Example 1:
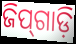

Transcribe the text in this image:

ଜିପ୍‍ଗାଡ଼ି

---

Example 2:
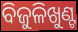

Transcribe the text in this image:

ବିଜୁଳିଖୁଣ୍ଟ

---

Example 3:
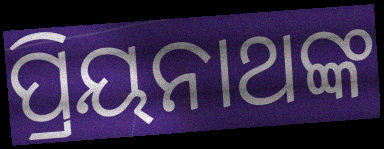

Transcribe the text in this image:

ପ୍ରିୟନାଥଙ୍କ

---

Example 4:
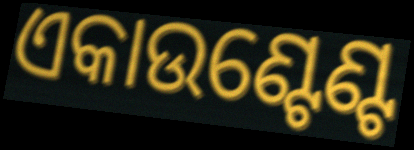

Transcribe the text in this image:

ଏକାଉଣ୍ଟେଣ୍ଟ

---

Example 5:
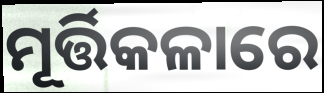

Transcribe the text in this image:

ମୂର୍ତ୍ତିକଳାରେ